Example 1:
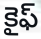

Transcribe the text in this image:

కైఫ్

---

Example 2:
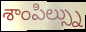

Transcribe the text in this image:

శాంపిల్స్ను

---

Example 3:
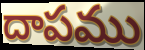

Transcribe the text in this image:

దాపము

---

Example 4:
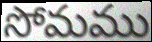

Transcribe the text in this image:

సోమము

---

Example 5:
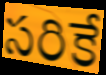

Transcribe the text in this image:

సరికే